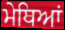
ਮੇਥਿਆਂ